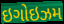
ઇગોઇઝમ